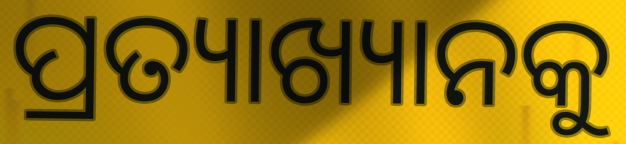
ପ୍ରତ୍ୟାଖ୍ୟାନକୁ